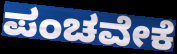
ಪಂಚವೇಕೆ